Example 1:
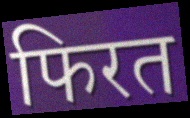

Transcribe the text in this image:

फिरत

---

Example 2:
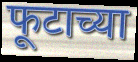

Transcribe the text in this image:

फूटाच्या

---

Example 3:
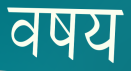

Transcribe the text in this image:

वषय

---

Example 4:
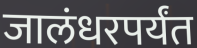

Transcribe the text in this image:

जालंधरपर्यंत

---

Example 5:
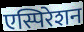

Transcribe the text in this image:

एस्पिरेशन